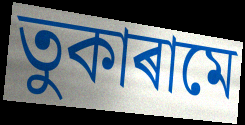
তুকাৰামে